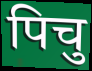
पिचु